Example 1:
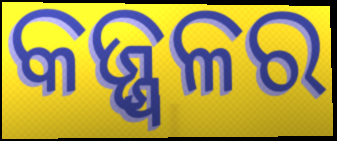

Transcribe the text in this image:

କଜ୍ଜ୍ୱଳର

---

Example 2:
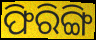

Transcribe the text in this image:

ଫିରିଙ୍ଗି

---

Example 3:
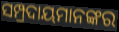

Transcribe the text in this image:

ସମ୍ପ୍ରଦାୟମାନଙ୍କର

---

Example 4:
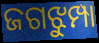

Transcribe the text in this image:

ଜଗଝୁମ୍ପା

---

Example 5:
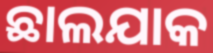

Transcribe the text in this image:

ଛାଲଯାକ